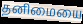
தனிமையை